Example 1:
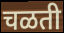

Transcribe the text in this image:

चळती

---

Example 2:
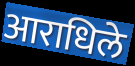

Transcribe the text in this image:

आराधिले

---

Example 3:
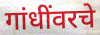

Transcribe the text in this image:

गांधींवरचे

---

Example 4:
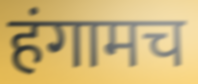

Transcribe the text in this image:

हंगामच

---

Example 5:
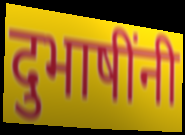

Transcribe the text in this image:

दुभाषींनी